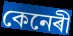
কেনেৰী